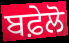
ਬਫ਼ੇਲੋ